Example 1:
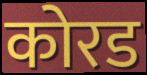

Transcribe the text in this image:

कोरड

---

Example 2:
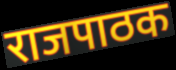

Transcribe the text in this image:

राजपाठक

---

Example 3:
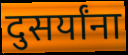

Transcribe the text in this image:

दुसर्यांना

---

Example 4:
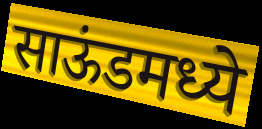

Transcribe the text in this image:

साऊंडमध्ये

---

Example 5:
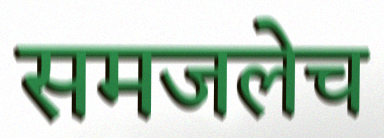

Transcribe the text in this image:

समजलेच